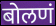
बोलणं